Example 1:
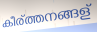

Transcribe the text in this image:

കീര്ത്തനങ്ങള്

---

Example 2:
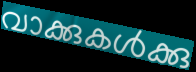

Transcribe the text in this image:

വാക്കുകൾക്കു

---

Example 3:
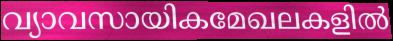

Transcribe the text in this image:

വ്യാവസായികമേഖലകളിൽ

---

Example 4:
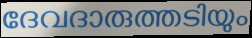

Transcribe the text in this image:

ദേവദാരുത്തടിയും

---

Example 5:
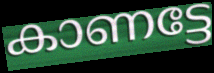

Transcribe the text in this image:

കാണട്ടേ